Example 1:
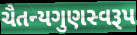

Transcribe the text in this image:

ચૈતન્યગુણસ્વરૂપ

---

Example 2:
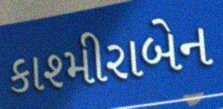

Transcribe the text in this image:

કાશ્મીરાબેન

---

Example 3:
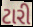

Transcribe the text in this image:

ટારી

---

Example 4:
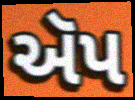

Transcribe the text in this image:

ઍપ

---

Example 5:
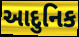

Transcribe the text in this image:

આદુનિક